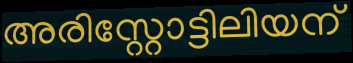
അരിസ്റ്റോട്ടിലിയന്